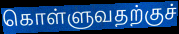
கொள்ளுவதற்குச்